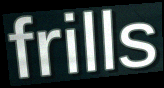
frills